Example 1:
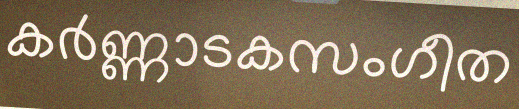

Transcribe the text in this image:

കർണ്ണാടകസംഗീത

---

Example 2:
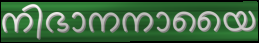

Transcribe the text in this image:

നിഭാനനായൈ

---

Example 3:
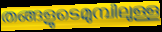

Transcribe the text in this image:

തങ്ങളുടെമുമ്പിലുള്ള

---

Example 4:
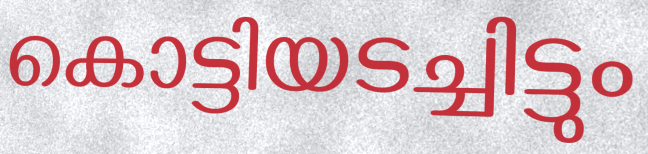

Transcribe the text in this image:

കൊട്ടിയടച്ചിട്ടും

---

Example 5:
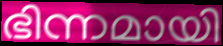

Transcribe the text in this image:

ഭിന്നമായി